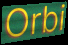
Orbi